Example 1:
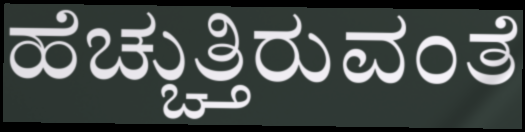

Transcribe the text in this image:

ಹೆಚ್ಚುತ್ತಿರುವಂತೆ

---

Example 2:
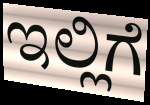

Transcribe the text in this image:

ಇಲ್ಲಿಗೆ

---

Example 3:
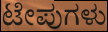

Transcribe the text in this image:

ಟೇಪುಗಳು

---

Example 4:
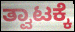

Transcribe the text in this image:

ತ್ವಾಟಕ್ಕೆ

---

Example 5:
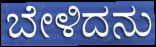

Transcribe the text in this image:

ಬೇಳಿದನು